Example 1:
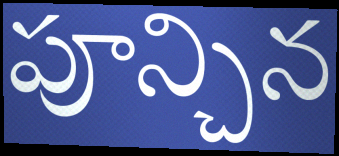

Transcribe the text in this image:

పూన్చిన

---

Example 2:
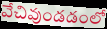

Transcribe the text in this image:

వేచివుండడంలో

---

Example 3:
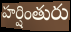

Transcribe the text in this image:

హర్షింతురు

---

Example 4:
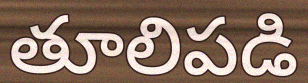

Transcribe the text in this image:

తూలిపడి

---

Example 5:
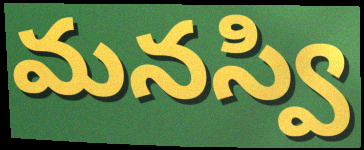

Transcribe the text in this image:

మనస్వి